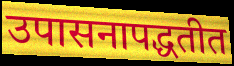
उपासनापद्धतीत